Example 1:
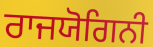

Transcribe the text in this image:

ਰਾਜਯੋਗਿਨੀ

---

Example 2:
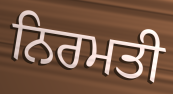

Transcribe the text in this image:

ਨਿਰਮਤੀ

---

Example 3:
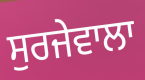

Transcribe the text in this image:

ਸੁਰਜੇਵਾਲਾ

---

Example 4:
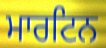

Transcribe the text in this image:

ਮਾਰਟਿਨ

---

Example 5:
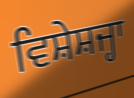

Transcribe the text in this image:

ਵਿਸ਼ੇਸ਼ਜ੍ਹਾ